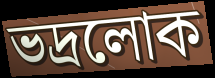
ভদ্রলোক